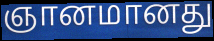
ஞானமானது